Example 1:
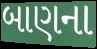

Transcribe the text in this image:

બાણના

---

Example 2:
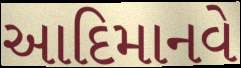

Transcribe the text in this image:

આદિમાનવે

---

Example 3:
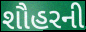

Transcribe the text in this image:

શૌહરની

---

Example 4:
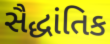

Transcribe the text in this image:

સૈદ્ધાંતિક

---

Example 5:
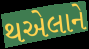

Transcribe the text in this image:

થએલાને